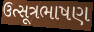
ઉત્સૂત્રભાષણ